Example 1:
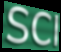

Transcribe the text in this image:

SCI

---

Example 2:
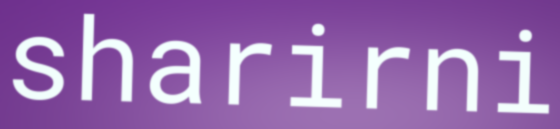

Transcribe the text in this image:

sharirni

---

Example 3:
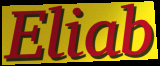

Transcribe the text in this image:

Eliab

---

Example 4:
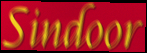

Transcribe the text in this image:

Sindoor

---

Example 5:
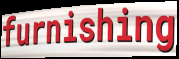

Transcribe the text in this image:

furnishing